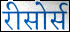
रीसोर्स